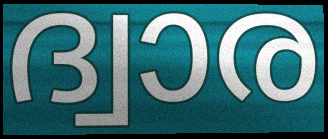
ദ്വാര